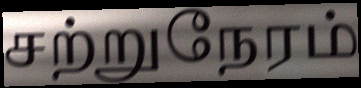
சற்றுநேரம்